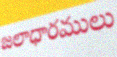
జలాధారములు